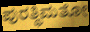
ಪುರತ್ಥಿಮತೋ